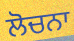
ਲੋਚਨਾ